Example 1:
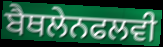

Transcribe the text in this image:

ਬੈਥਲੇਨਫਲਵੀ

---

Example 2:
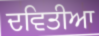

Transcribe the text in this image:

ਦਵਿਤੀਆ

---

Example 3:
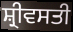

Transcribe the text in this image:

ਸ਼੍ਰੀਵਸਤੀ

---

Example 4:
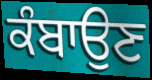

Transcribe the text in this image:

ਕੰਬਾਉਣ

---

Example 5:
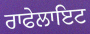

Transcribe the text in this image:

ਰਾਫੇਲਾਇਟ